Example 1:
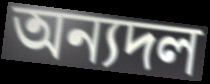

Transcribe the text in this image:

অন্যদল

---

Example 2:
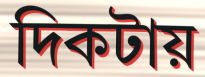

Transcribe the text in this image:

দিকটায়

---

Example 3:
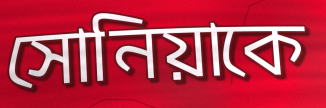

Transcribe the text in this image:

সোনিয়াকে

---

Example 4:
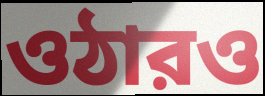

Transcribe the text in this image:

ওঠারও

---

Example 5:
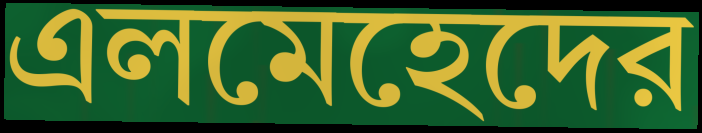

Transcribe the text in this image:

এলমেহেদের